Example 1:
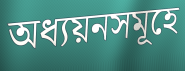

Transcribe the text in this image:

অধ্যয়নসমূহে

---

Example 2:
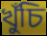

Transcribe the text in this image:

খুঁচি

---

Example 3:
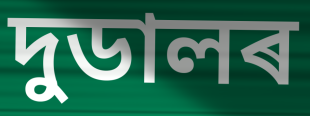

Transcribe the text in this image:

দুডালৰ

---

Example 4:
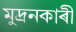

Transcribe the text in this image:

মুদ্ৰনকাৰী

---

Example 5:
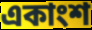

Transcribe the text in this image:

একাংশ